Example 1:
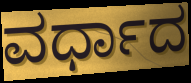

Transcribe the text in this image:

ವರ್ಧಾದ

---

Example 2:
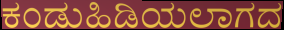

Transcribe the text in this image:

ಕಂಡುಹಿಡಿಯಲಾಗದ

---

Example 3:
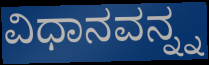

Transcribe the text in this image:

ವಿಧಾನವನ್ನ್ನ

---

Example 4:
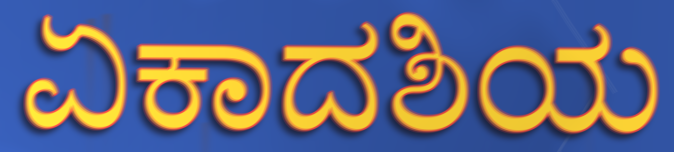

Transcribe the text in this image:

ಏಕಾದಶಿಯ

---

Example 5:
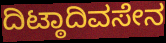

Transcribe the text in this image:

ದಿಟ್ಠಾದಿವಸೇನ